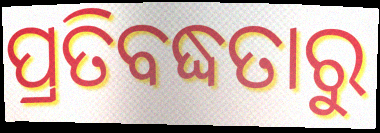
ପ୍ରତିବଦ୍ଧତାରୁ